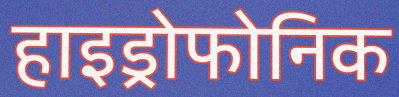
हाइड्रोफोनिक